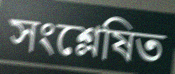
সংশ্লেষিত